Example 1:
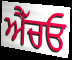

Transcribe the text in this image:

ਐੱਚਓ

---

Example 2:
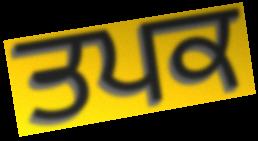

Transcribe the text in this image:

ਤਪਕ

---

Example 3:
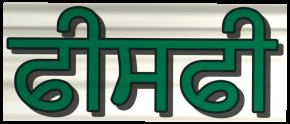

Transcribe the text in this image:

ਫੀਸਫੀ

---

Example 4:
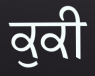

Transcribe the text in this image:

ਕੁਕੀ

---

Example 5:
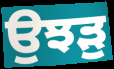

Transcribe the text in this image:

ਉਝੜੁ